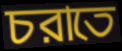
চরাতে